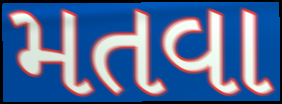
મતવા